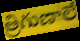
త్రిగుణాలే